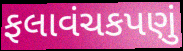
ફલાવંચકપણું